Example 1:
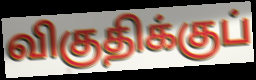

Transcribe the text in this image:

விகுதிக்குப்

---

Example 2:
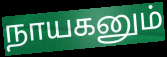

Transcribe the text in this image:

நாயகனும்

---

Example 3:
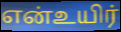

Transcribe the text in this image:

என்உயிர்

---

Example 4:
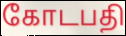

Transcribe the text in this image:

கோடபதி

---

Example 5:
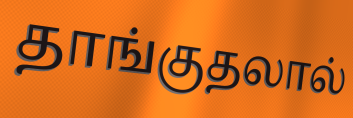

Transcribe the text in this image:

தாங்குதலால்